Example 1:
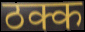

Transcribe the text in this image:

ठक्क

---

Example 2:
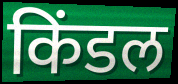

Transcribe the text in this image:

किंडल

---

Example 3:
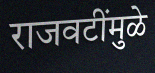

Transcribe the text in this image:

राजवटींमुळे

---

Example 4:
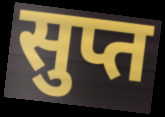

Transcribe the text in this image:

सुप्त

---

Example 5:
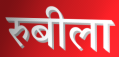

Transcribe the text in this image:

रुबीला